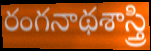
రంగనాథశాస్త్రి